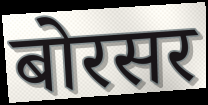
बोरसर